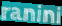
ranini